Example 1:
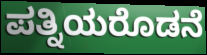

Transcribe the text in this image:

ಪತ್ನಿಯರೊಡನೆ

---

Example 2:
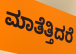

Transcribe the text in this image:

ಮಾತೆತ್ತಿದರೆ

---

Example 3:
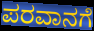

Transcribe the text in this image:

ಪರವಾನಗೆ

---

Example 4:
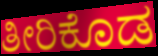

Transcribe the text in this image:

ತೀರಿಕೊಡ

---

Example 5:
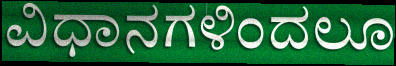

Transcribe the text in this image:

ವಿಧಾನಗಳಿಂದಲೂ